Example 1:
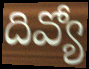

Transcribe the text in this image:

దివ్యో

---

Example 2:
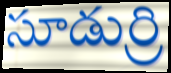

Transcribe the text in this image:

సూడుర్రి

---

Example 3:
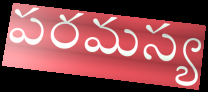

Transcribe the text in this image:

పరమస్య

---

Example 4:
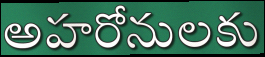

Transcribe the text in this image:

అహరోనులకు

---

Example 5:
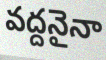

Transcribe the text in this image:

వద్దనైనా